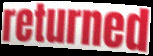
returned